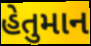
હેતુમાન